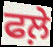
ਫਲ਼ੇ